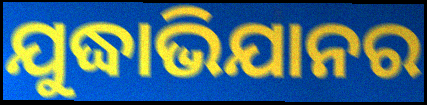
ଯୁଦ୍ଧାଭିଯାନର